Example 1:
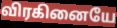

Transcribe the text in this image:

விரகினையே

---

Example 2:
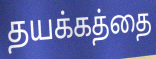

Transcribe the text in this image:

தயக்கத்தை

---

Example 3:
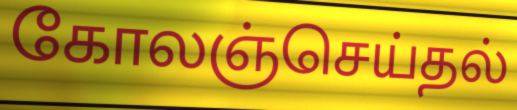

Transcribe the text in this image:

கோலஞ்செய்தல்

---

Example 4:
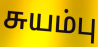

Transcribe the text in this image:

சுயம்பு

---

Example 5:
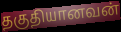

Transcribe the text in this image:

தகுதியானவன்